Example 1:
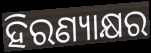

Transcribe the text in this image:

ହିରଣ୍ୟାକ୍ଷର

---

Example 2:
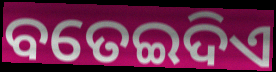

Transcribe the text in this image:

ବତେଇଦିଏ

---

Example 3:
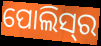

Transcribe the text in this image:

ପୋଲିସ୍‍ର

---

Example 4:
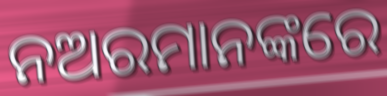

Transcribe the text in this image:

ନଅରମାନଙ୍କରେ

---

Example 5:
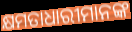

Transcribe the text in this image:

କ୍ଷମତାଧାରୀମାନଙ୍କ